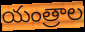
యంత్రాల